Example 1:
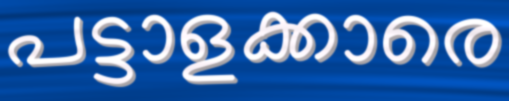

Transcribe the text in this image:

പട്ടാളക്കാരെ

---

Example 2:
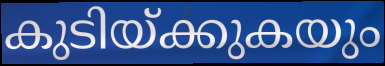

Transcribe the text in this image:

കുടിയ്ക്കുകയും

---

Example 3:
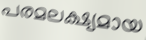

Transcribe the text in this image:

പരമലക്ഷ്യമായ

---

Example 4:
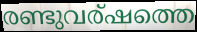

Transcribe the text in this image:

രണ്ടുവര്ഷത്തെ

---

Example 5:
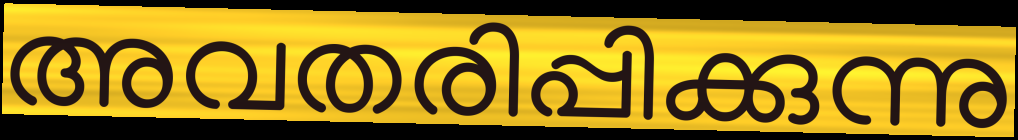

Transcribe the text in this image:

അവതരിപ്പിക്കുന്നു